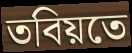
তবিয়তে